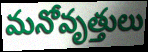
మనోవృత్తులు